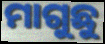
ମାଗୁଛୁ